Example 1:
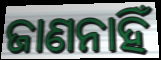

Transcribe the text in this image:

ଜାଣନାହିଁ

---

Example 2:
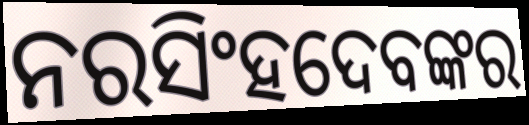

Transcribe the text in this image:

ନରସିଂହଦେବଙ୍କର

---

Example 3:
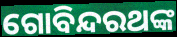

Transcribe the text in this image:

ଗୋବିନ୍ଦରଥଙ୍କ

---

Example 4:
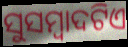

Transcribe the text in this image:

ସୁସମ୍ବାଦଟିଏ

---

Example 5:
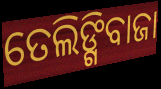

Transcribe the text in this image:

ତେଲିଙ୍ଗିବାଜା